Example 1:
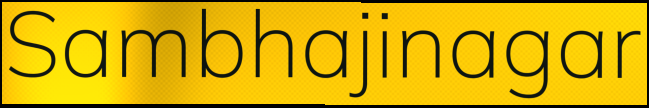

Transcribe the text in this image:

Sambhajinagar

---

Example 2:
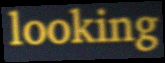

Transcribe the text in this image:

looking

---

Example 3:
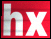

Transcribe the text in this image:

hx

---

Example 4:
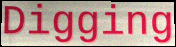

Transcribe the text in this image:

Digging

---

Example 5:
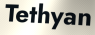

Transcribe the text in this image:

Tethyan